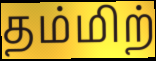
தம்மிற்